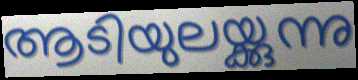
ആടിയുലയ്ക്കുന്നു